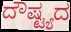
ದೌಷ್ಟ್ಯದ